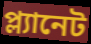
প্ল্যানেট